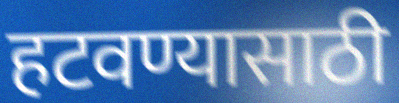
हटवण्यासाठी